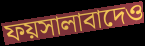
ফয়সালাবাদেও